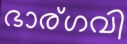
ഭാര്ഗവി